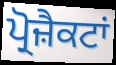
ਪ੍ਰੋਜ਼ੈਕਟਾਂ